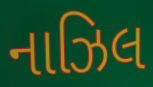
નાઝિલ